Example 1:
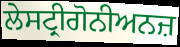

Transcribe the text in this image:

ਲੇਸਟ੍ਰੀਗੋਨੀਅਨਜ਼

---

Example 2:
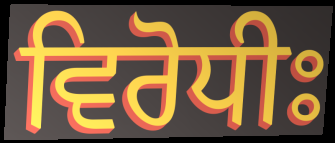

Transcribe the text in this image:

ਵਿਰੋਧੀਃ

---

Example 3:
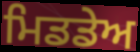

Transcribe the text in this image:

ਮਿਡਡੇਅ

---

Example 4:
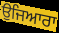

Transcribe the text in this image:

ਉਜਿਆਰਾ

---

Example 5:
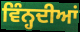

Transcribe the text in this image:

ਵਿੰਨ੍ਹਦੀਆਂ